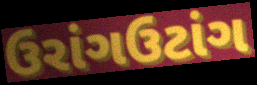
ઉરાંગઉટાંગ